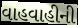
વાહવાહીની